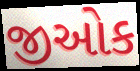
જીઓક